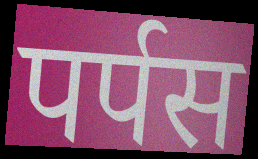
पर्पस